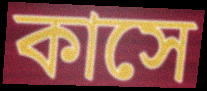
কাসে